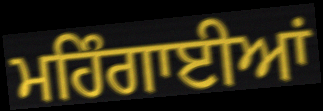
ਮਹਿੰਗਾਈਆਂ